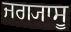
ਜਗ੍ਯਾਸੂ